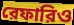
রেফারিও